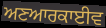
ਅਣਆਰਕਾਈਵ